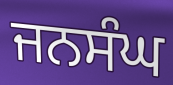
ਜਨਸੰਘ